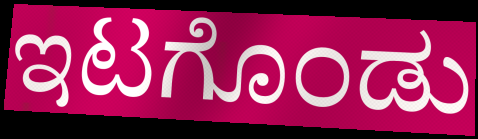
ಇಟಗೊಂಡು